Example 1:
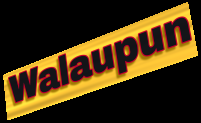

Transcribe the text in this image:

Walaupun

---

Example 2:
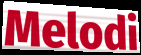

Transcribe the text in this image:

Melodi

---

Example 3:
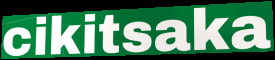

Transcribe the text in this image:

cikitsaka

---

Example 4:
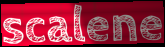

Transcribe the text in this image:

scalene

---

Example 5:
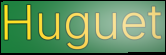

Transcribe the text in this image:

Huguet